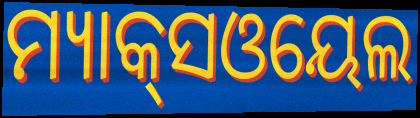
ମ୍ୟାକ୍‌ସଓୟେଲ